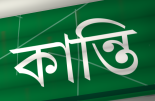
কান্তি